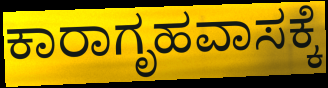
ಕಾರಾಗೃಹವಾಸಕ್ಕೆ